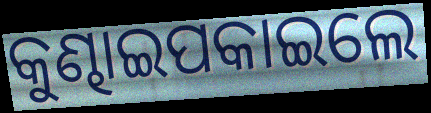
କୁଣ୍ଢାଇପକାଇଲେ